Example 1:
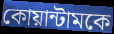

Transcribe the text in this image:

কোয়ান্টামকে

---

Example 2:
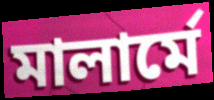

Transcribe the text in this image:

মালার্মে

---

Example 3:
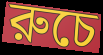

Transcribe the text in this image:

রুচে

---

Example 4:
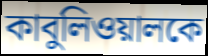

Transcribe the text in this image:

কাবুলিওয়ালকে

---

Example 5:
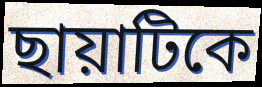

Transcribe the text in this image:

ছায়াটিকে